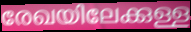
രേഖയിലേക്കുള്ള